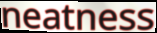
neatness